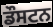
ਡੌਸਟਨ